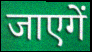
जाएगें